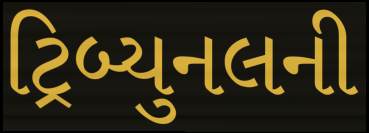
ટ્રિબ્યુનલની